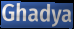
Ghadya